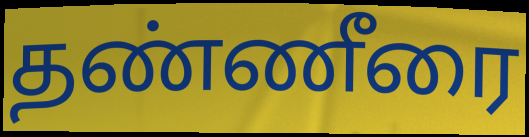
தண்ணீரை